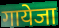
गायेजा